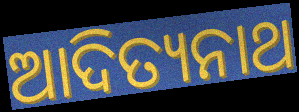
ଆଦିତ୍ୟନାଥ